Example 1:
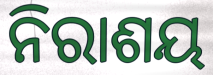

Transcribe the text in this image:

ନିରାଶୟ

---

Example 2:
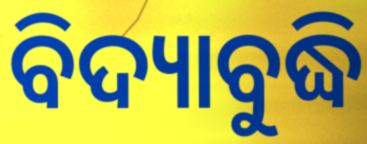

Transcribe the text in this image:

ବିଦ୍ୟାବୁଦ୍ଧି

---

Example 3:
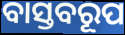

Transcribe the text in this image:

ବାସ୍ତବରୂପ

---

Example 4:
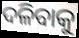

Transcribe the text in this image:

ଦଳିବାକୁ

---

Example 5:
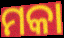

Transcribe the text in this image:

ମକା